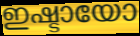
ഇഷ്ടായോ